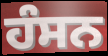
ਹੰਸਨ